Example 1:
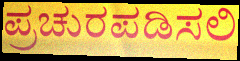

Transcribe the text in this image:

ಪ್ರಚುರಪಡಿಸಲಿ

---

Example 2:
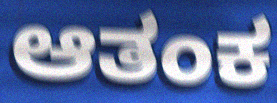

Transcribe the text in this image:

ಆತಂಕ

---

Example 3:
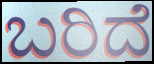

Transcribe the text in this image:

ಬರಿದೆ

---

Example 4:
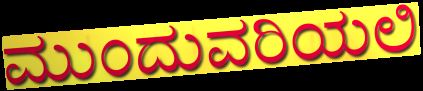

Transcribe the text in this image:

ಮುಂದುವರಿಯಲಿ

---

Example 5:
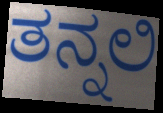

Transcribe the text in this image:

ತನ್ನಲಿ